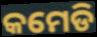
କମେଡି